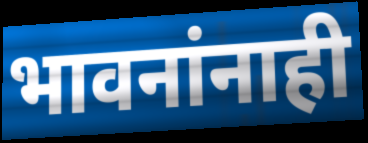
भावनांनाही